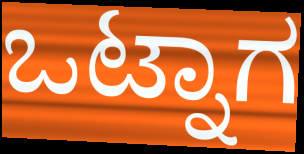
ಒಟ್ನಾಗ